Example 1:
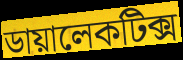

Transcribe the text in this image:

ডায়ালেকটিক্স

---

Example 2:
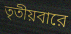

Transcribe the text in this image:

তৃতীয়বারে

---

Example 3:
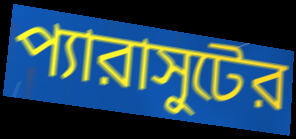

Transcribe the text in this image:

প্যারাসুটের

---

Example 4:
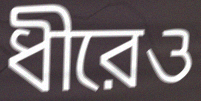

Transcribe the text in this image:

ধীরেও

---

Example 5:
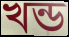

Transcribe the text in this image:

খন্ড